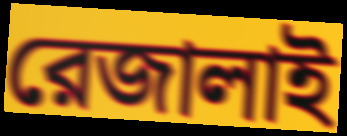
রেজালাই